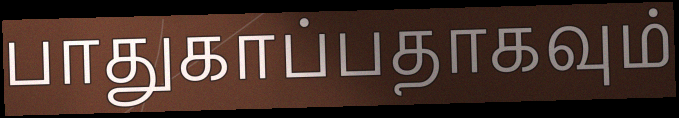
பாதுகாப்பதாகவும்